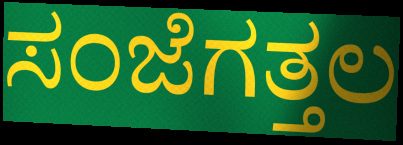
ಸಂಜೆಗತ್ತಲ